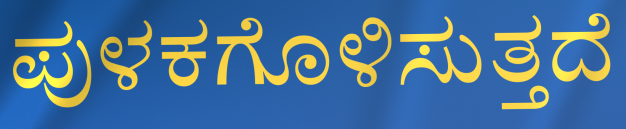
ಪುಳಕಗೊಳಿಸುತ್ತದೆ